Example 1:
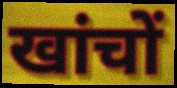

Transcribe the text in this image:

खांचों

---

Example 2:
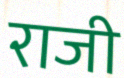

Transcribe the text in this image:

राजी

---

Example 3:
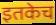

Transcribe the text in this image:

इतकेच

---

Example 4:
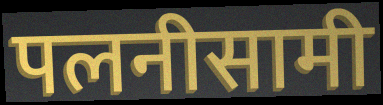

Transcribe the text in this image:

पलनीसामी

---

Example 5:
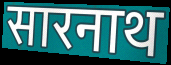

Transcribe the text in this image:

सारनाथ